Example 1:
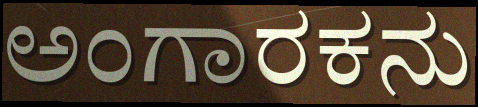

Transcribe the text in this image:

ಅಂಗಾರಕನು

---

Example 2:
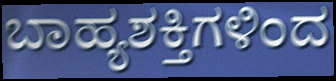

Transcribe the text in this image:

ಬಾಹ್ಯಶಕ್ತಿಗಳಿಂದ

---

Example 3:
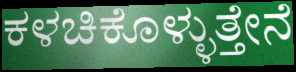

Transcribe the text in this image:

ಕಳಚಿಕೊಳ್ಳುತ್ತೇನೆ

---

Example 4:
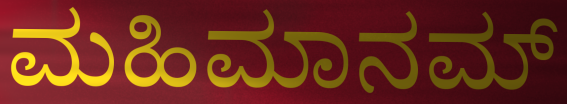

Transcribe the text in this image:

ಮಹಿಮಾನಮ್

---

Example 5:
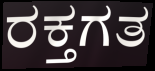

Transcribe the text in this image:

ರಕ್ತಗತ